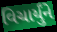
વિચાર્યુંને